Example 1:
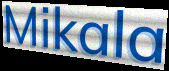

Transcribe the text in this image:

Mikala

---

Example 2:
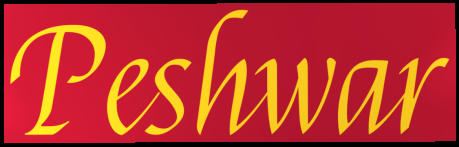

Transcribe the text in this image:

Peshwar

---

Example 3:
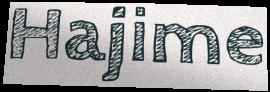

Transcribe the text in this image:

Hajime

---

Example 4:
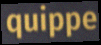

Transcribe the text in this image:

quippe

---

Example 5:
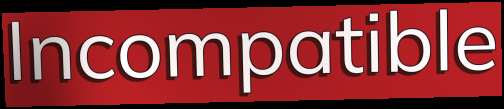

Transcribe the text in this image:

Incompatible